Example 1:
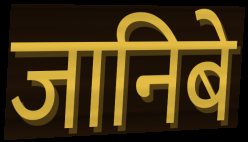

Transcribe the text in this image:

जानिबे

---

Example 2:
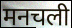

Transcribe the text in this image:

मनचली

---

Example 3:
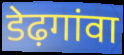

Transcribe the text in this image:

डेढ़गांवा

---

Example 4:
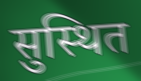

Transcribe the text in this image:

सुस्थित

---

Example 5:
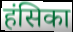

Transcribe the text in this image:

हंसिका